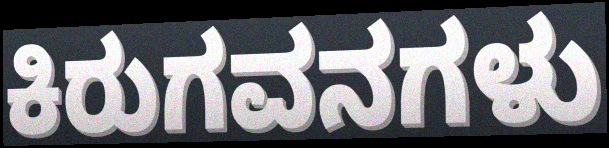
ಕಿರುಗವನಗಳು